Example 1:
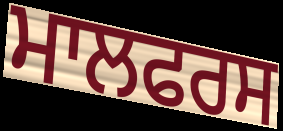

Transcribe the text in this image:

ਮਾਲਫਰਸ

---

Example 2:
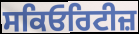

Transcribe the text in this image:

ਸਕਿਓਰਿਟੀਜ਼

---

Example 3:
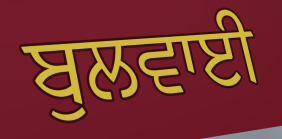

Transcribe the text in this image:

ਬੁਲਵਾਈ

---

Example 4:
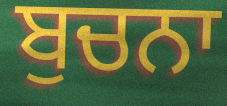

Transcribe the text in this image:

ਬੁਚਨਾ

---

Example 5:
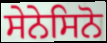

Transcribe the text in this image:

ਸੇਨੇਸਿਨੋ